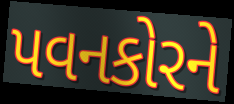
પવનકોરને